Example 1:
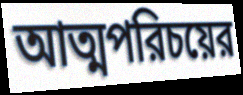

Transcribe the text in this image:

আত্মপরিচয়ের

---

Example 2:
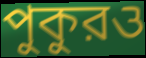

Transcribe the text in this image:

পুকুরও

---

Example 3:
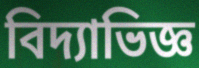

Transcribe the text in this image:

বিদ্যাভিজ্ঞ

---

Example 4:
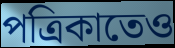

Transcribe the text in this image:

পত্রিকাতেও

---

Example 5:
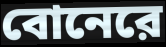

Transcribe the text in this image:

বোনেরে